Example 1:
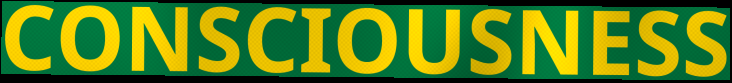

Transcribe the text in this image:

CONSCIOUSNESS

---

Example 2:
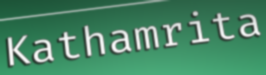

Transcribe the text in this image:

Kathamrita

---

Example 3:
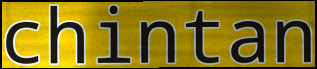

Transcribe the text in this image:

chintan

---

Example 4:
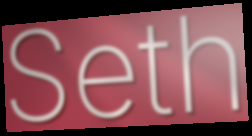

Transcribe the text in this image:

Seth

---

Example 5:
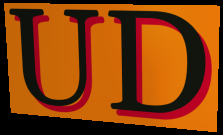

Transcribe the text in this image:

UD